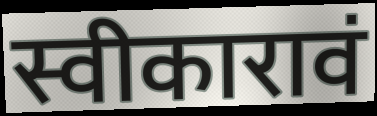
स्वीकारावं